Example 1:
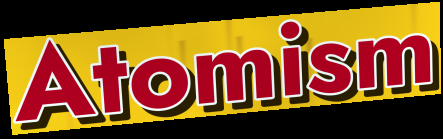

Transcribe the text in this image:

Atomism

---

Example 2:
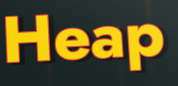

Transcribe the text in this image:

Heap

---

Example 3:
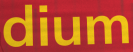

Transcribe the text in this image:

dium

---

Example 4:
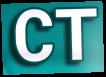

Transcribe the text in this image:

CT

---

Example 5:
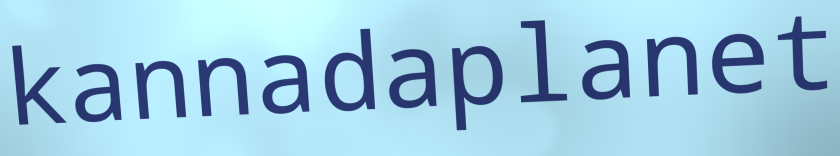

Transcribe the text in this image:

kannadaplanet